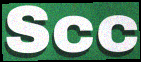
Scc